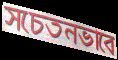
সচেতনভাবে